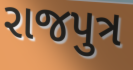
રાજપુત્ર